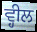
ਵ੍ਹੀਲ